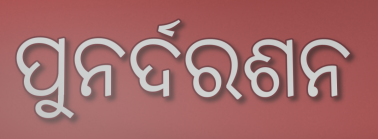
ପୁନର୍ଦରଶନ